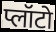
प्लॉटो